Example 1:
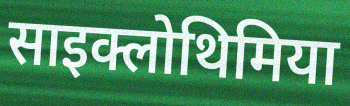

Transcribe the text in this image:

साइक्लोथिमिया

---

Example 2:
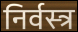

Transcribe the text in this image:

निर्वस्त्र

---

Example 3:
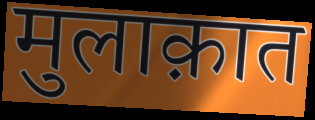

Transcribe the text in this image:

मुलाक़ात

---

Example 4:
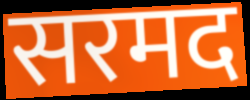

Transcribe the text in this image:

सरमद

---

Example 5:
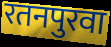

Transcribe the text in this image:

रतनपुरवा